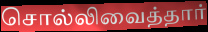
சொல்லிவைத்தார்